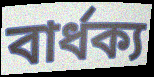
বার্ধক্য